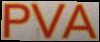
PVA